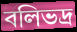
বলিভদ্র